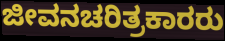
ಜೀವನಚರಿತ್ರಕಾರರು